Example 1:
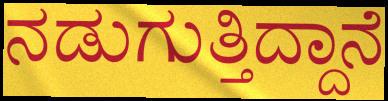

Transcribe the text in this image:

ನಡುಗುತ್ತಿದ್ದಾನೆ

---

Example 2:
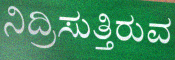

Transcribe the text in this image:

ನಿದ್ರಿಸುತ್ತಿರುವ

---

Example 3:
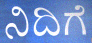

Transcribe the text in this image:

ನಿದಿಗೆ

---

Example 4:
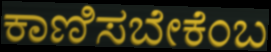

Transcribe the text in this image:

ಕಾಣಿಸಬೇಕೆಂಬ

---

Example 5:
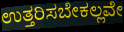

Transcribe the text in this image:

ಉತ್ತರಿಸಬೇಕಲ್ಲವೇ